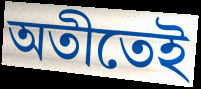
অতীতেই